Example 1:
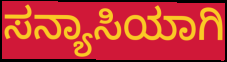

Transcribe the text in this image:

ಸನ್ಯಾಸಿಯಾಗಿ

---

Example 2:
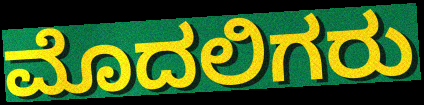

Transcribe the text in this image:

ಮೊದಲಿಗರು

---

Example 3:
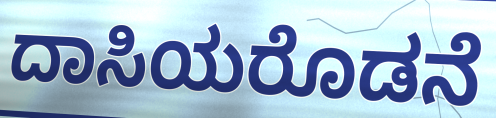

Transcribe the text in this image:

ದಾಸಿಯರೊಡನೆ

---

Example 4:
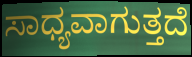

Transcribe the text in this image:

ಸಾಧ್ಯವಾಗುತ್ತದೆ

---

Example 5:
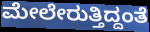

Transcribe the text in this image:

ಮೇಲೇರುತ್ತಿದ್ದಂತೆ